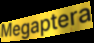
Megaptera